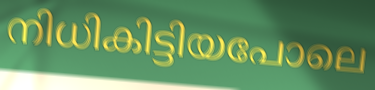
നിധികിട്ടിയപോലെ